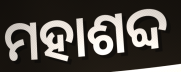
ମହାଶବ୍ଦ